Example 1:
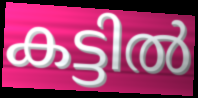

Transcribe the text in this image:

കട്ടിൽ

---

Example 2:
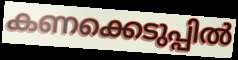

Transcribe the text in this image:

കണക്കെടുപ്പിൽ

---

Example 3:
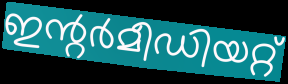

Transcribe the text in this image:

ഇന്റർമീഡിയറ്റ്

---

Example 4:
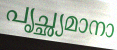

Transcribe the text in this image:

പൃച്ഛ്യമാനാ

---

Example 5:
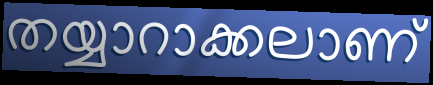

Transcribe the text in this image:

തയ്യാറാക്കലാണ്